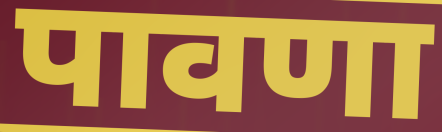
पावणा